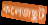
কলেজছুট